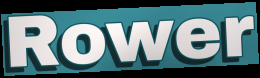
Rower